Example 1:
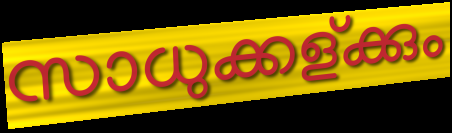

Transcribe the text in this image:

സാധുക്കള്ക്കും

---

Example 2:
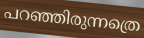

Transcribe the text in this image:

പറഞ്ഞിരുന്നത്രെ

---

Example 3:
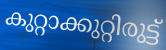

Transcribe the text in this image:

കുറ്റാക്കുറ്റിരുട്ട്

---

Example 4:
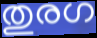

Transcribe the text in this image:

തുരഗ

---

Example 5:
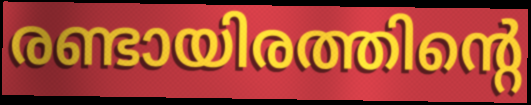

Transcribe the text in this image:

രണ്ടായിരത്തിന്റെ